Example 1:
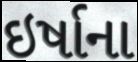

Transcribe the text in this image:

ઇર્ષાના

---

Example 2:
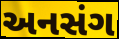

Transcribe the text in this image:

અનસંગ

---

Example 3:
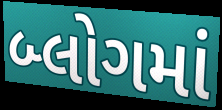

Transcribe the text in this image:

બ્લોગમાં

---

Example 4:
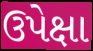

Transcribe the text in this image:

ઉપેક્ષા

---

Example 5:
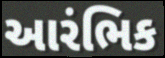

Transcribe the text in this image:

આરંભિક